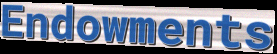
Endowments